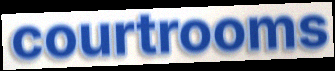
courtrooms